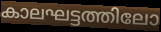
കാലഘട്ടത്തിലോ